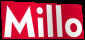
Millo